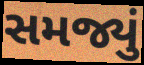
સમજ્યું